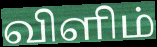
விளிம்